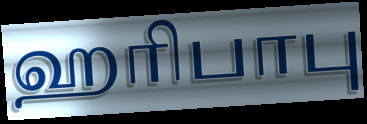
ஹரிபாபு